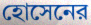
হোসেনের